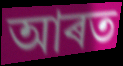
আৰত